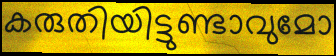
കരുതിയിട്ടുണ്ടാവുമോ